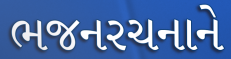
ભજનરચનાને